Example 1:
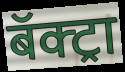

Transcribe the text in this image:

बॅक्ट्रा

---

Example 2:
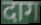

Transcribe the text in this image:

दाग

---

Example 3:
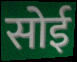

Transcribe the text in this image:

सोई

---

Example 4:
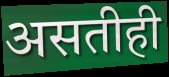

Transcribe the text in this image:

असतीही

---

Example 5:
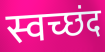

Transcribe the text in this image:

स्वच्छंद